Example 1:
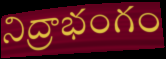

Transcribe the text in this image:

నిద్రాభంగం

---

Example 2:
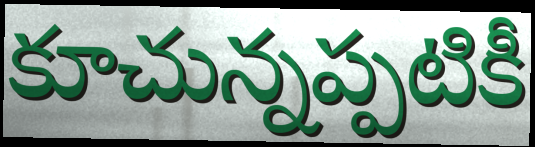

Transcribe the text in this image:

కూచున్నప్పటికీ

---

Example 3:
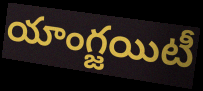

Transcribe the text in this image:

యాంగ్జయిటీ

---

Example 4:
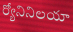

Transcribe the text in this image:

ర్యోనినిలయా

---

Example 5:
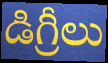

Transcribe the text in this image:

డిగ్రీలు